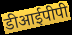
डीआईपीपी